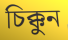
চিক্কুন